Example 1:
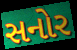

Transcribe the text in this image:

સનોર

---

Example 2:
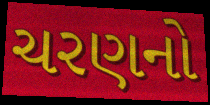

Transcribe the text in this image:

ચરણનો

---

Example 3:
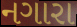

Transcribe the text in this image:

નગારા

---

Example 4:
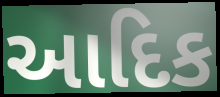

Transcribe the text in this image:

આદિક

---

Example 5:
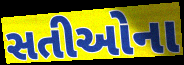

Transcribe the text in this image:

સતીઓના